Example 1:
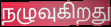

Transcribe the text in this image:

நழுவுகிறது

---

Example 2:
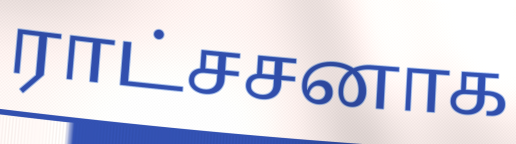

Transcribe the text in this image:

ராட்சசனாக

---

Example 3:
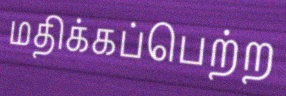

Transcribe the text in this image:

மதிக்கப்பெற்ற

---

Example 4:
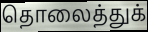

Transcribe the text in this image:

தொலைத்துக்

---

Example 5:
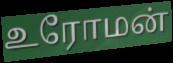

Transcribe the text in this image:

உரோமன்